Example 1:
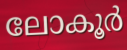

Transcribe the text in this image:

ലോകൂർ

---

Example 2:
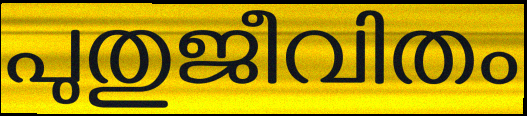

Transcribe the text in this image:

പുതുജീവിതം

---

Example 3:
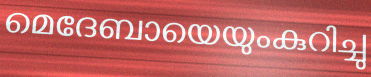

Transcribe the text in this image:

മെദേബായെയുംകുറിച്ചു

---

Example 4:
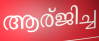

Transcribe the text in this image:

ആര്ജിച്ച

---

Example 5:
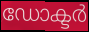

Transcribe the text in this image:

ഡോക്ടർ